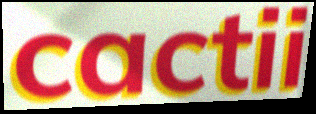
cactii